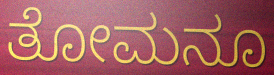
ತೋಮನೂ